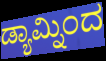
ಡ್ಯಾಮ್ನಿಂದ